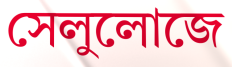
সেলুলোজে